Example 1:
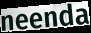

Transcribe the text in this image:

neenda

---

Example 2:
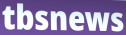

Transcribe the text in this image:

tbsnews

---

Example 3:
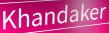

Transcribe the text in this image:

Khandaker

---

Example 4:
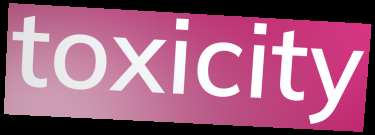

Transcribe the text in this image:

toxicity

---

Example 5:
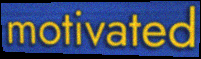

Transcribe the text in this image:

motivated